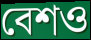
বেশও